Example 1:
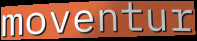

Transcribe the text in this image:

moventur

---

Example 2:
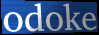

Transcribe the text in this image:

odoke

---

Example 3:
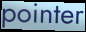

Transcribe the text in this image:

pointer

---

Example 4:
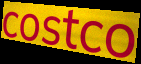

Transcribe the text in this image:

costco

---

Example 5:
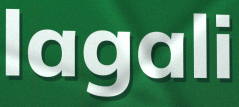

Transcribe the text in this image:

lagali